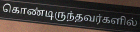
கொண்டிருந்தவர்களில்